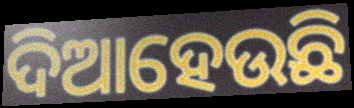
ଦିଆହେଉଛି